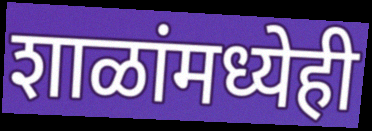
शाळांमध्येही